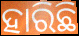
ହାରିଛି